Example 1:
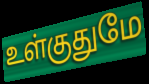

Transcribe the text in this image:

உள்குதுமே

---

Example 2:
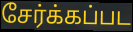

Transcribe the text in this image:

சேர்க்கப்பட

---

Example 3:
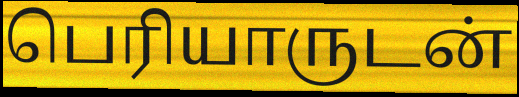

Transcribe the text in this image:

பெரியாருடன்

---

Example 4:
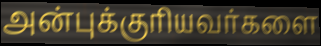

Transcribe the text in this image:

அன்புக்குரியவர்களை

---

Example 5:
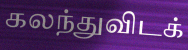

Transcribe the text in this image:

கலந்துவிடக்